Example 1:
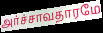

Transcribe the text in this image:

அர்ச்சாவதாரமே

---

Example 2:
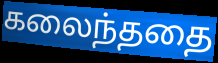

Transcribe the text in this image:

கலைந்ததை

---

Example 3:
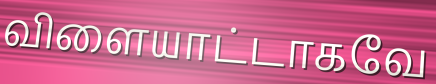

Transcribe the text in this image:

விளையாட்டாகவே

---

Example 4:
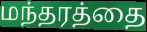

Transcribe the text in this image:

மந்தரத்தை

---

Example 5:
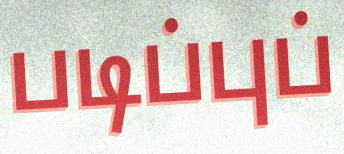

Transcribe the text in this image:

படிப்புப்